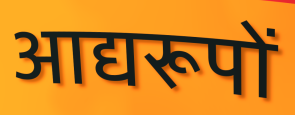
आद्यरूपों